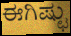
ಈಗಿಷ್ಟು